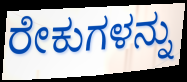
ರೇಕುಗಳನ್ನು